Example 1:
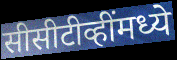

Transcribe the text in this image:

सीसीटीव्हींमध्ये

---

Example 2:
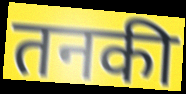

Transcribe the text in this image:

तनकी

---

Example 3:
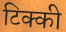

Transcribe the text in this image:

टिक्की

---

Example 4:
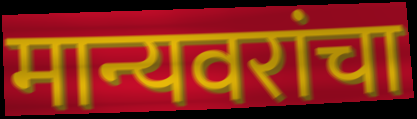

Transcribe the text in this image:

मान्यवरांचा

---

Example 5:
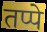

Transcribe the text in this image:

तप्पे